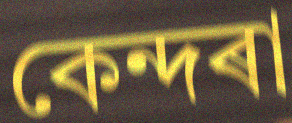
কেন্দৰা